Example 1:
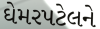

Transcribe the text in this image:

ઘેમરપટેલને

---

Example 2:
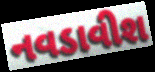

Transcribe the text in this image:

નવડાવીશ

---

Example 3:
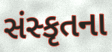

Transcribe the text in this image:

સંસ્કૃતના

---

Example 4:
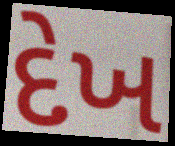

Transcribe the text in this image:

દેખ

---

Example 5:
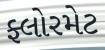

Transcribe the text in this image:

ફ્લોરમેટ